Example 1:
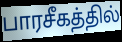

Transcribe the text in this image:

பாரசீகத்தில்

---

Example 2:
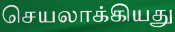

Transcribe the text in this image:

செயலாக்கியது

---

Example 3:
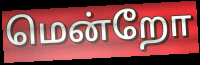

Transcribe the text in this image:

மென்றோ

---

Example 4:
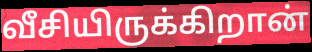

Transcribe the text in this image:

வீசியிருக்கிறான்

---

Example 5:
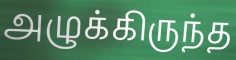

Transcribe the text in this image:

அழுக்கிருந்த